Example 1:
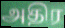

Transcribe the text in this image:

அதிர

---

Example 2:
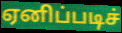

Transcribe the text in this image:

ஏனிப்படிச்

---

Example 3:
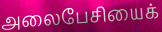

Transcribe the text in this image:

அலைபேசியைக்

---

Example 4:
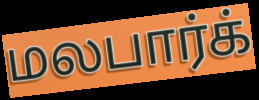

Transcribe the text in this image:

மலபார்க்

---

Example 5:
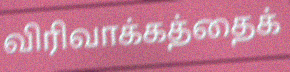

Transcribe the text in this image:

விரிவாக்கத்தைக்